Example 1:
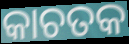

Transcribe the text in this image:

କାଚତକ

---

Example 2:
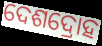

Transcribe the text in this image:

ଦେଶଦ୍ରୋହ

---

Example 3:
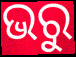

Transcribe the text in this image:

ଭରୁ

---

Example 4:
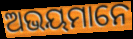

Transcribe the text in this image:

ଅଭୟମାନେ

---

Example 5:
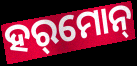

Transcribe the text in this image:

ହର୍‌ମୋନ୍